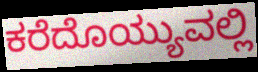
ಕರೆದೊಯ್ಯುವಲ್ಲಿ